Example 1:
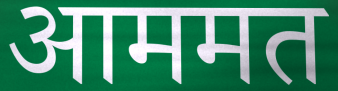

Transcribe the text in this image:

आममत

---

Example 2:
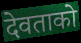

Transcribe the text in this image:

देवताको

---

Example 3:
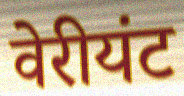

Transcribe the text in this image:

वेरीयंट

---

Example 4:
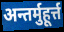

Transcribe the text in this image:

अन्तर्मुहूर्त्त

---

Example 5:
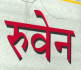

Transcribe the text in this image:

रुवेन